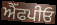
ਐੱਫਪੀਓ